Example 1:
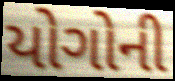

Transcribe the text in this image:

યોગોની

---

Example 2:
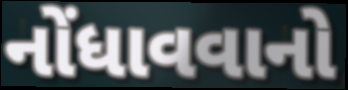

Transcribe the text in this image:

નોંધાવવાનો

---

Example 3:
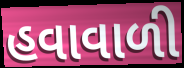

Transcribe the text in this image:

હવાવાળી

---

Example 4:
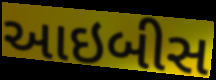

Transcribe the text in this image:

આઇબીસ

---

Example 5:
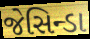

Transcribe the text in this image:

જેસિન્ડા